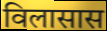
विलासास